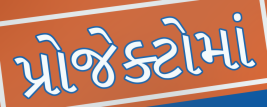
પ્રોજેક્ટોમાં